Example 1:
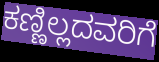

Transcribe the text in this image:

ಕಣ್ಣಿಲ್ಲದವರಿಗೆ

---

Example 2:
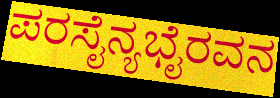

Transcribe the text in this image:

ಪರಸೈನ್ಯಭೈರವನ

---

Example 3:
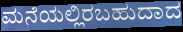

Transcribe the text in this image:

ಮನೆಯಲ್ಲಿರಬಹುದಾದ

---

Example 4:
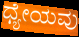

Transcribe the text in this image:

ಧ್ಯೇಯವು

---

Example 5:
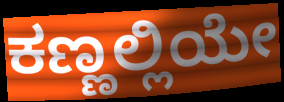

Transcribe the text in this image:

ಕಣ್ಣಲ್ಲಿಯೇ